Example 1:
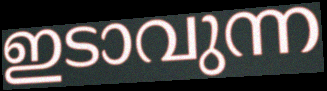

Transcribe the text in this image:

ഇടാവുന്ന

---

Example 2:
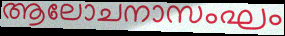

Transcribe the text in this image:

ആലോചനാസംഘം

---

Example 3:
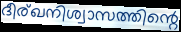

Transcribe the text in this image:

ദീര്ഖനിശ്വാസത്തിന്റെ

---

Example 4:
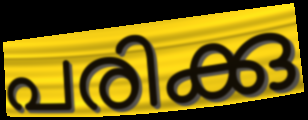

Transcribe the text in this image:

പരിക്കു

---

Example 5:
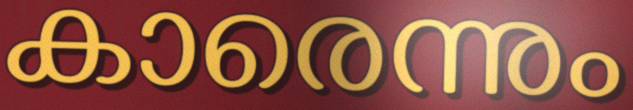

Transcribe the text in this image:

കാരെന്നും